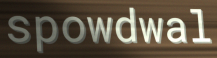
spowdwal